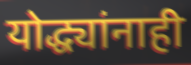
योद्ध्यांनाही